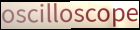
oscilloscope